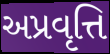
અપ્રવૃત્તિ